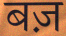
बज़